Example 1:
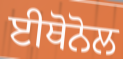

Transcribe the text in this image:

ਈਥੋਨੋਲ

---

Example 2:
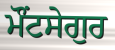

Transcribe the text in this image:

ਮੌਂਟਸੇਗੁਰ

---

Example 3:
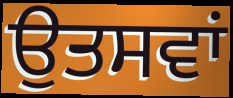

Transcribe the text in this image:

ਉਤਸਵਾਂ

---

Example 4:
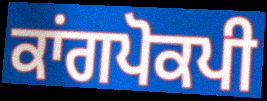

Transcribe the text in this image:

ਕਾਂਗਪੋਕਪੀ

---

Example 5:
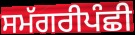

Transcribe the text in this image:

ਸਮੱਗਰੀਪੰਛੀ